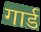
गार्ड